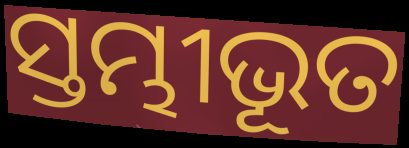
ସ୍ତମ୍ଭୀଭୂତ